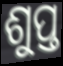
ଶୁପ୍ତ